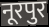
नूरपुर